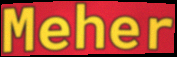
Meher